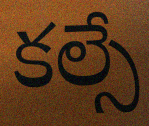
కల్సే